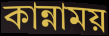
কান্নাময়